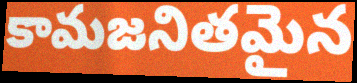
కామజనితమైన